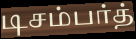
டிசம்பர்த்